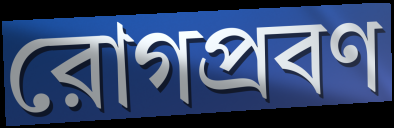
রোগপ্রবণ